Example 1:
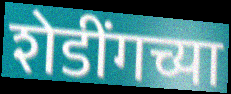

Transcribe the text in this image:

शेडींगच्या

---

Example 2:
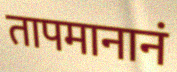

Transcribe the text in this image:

तापमानानं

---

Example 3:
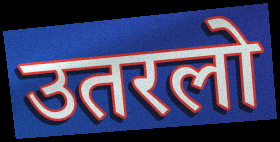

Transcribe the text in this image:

उतरलो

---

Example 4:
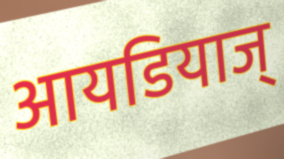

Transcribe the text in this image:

आयडियाज्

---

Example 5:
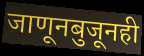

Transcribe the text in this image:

जाणूनबुजूनही